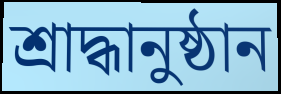
শ্রাদ্ধানুষ্ঠান